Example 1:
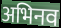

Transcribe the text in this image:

अभिनव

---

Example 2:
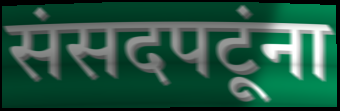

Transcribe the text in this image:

संसदपटूंना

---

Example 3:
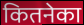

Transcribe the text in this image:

कितनेका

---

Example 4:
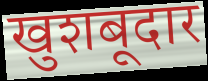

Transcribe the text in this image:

खुशबूदार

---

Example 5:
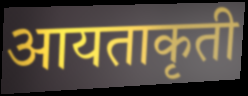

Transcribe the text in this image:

आयताकृती